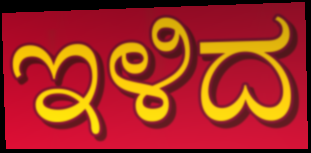
ಇಳಿದ